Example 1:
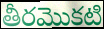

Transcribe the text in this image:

తీరమొకటి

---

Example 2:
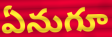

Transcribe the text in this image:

ఏనుగూ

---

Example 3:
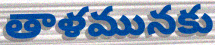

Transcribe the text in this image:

తాళమునకు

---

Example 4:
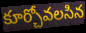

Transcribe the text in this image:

కూర్చోవలసిన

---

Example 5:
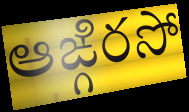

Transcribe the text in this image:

ఆఙ్గిరసో